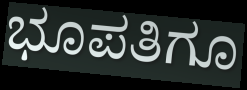
ಭೂಪತಿಗೂ